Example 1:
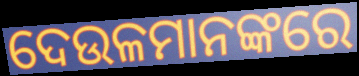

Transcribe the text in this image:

ଦେଉଳମାନଙ୍କରେ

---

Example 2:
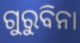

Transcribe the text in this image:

ଗୁରୁବିନା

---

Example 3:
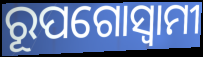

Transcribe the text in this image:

ରୂପଗୋସ୍ୱାମୀ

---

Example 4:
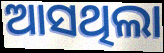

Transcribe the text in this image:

ଆସଥିଲା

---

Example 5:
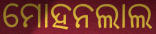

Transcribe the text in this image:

ମୋହନଲାଲ